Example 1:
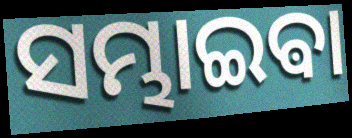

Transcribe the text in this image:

ସମ୍ଭାଇଵା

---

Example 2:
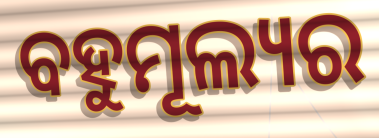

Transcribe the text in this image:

ବହୁମୂଲ୍ୟର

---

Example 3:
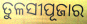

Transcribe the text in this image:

ତୁଳସୀପୂଜାର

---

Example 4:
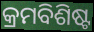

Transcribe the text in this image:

କ୍ରମବିଶିଷ୍ଟ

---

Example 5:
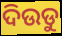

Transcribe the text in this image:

ଦିଉଡୁ